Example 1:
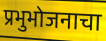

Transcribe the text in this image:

प्रभुभोजनाचा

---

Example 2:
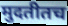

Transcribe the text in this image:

मुदतीतच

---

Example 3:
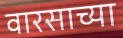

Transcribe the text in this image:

वारसाच्या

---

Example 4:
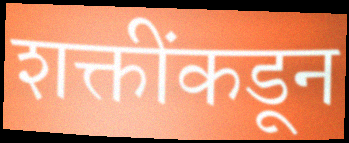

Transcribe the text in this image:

शक्तींकडून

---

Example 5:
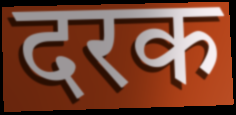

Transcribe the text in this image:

दरक